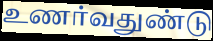
உணர்வதுண்டு